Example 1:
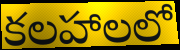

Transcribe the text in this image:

కలహాలలో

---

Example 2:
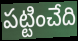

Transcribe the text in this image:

పట్టించేది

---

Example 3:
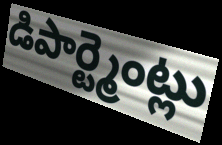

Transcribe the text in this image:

డిపార్ట్మెంట్లు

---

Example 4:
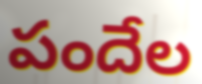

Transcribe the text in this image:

పందేల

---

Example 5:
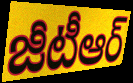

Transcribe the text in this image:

జీటీఆర్